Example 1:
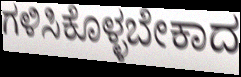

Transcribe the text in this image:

ಗಳಿಸಿಕೊಳ್ಳಬೇಕಾದ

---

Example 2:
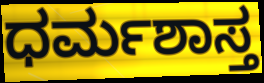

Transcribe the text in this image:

ಧರ್ಮಶಾಸ್ತ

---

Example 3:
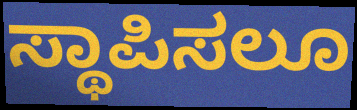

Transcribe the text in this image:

ಸ್ಥಾಪಿಸಲೂ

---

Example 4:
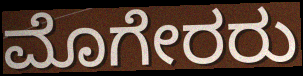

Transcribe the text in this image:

ಮೊಗೇರರು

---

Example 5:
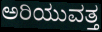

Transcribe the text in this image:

ಅರಿಯುವತ್ತ